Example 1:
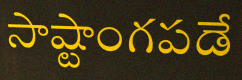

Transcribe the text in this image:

సాష్టాంగపడే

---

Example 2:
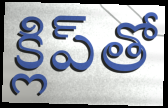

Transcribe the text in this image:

క్లిప్‌తో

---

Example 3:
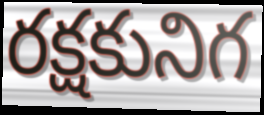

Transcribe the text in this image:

రక్షకునిగ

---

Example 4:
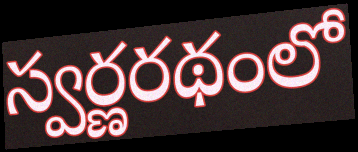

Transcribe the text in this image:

స్వర్ణరథంలో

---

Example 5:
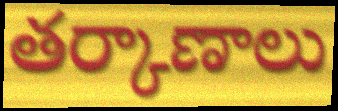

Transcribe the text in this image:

తర్కాణాలు